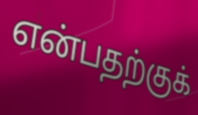
என்பதற்குக்